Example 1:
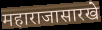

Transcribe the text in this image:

महाराजासारखे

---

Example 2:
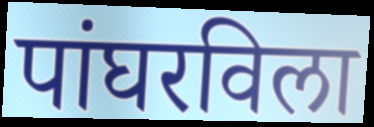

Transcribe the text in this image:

पांघरविला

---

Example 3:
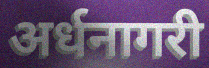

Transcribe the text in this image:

अर्धनागरी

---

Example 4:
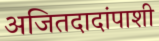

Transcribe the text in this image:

अजितदादांपाशी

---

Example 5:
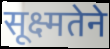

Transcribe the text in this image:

सूक्ष्मतेने